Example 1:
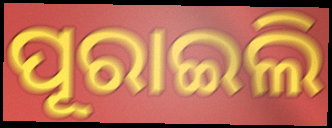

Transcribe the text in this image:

ପୂରାଇଲି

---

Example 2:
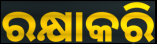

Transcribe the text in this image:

ରକ୍ଷାକରି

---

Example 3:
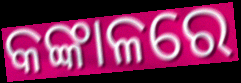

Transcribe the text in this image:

କଙ୍କାଳରେ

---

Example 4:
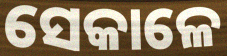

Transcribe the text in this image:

ସେକାଳେ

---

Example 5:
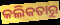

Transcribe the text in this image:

କଲିକତାରୁ